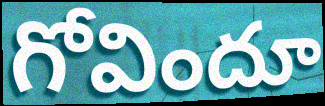
గోవిందూ